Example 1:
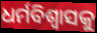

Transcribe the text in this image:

ଧର୍ମବିଶ୍ୱାସକୁ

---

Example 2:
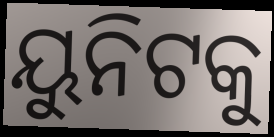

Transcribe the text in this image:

ୟୁନିଟକୁ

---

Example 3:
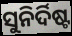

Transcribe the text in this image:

ସୁନିର୍ଦିଷ୍ଟ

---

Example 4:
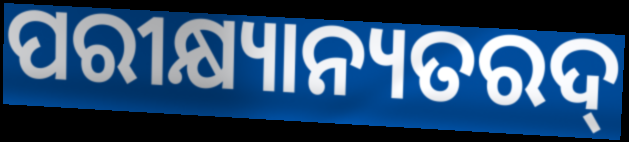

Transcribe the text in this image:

ପରୀକ୍ଷ୍ୟାନ୍ୟତରଦ୍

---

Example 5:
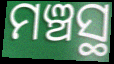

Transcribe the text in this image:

ମଞ୍ଚସ୍ଥ